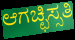
ಆಗಚ್ಛಿಸ್ಸತಿ